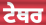
ਟੇਥਰ